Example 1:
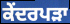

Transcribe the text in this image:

ਕੇਂਦਰਪੜਾ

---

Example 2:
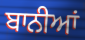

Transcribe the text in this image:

ਬਾਨੀਆਂ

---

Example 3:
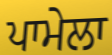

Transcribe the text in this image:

ਪਾਮੇਲਾ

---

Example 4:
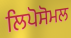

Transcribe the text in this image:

ਲਿਪੋਸੋਮਲ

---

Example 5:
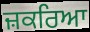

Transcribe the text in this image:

ਜ਼ਕਰਿਆ